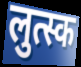
लुत्स्क